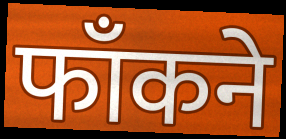
फाँकने